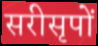
सरीसृपों